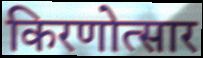
किरणोत्सार